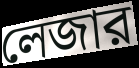
লেজার